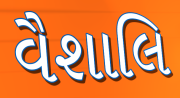
વૈશાલિ